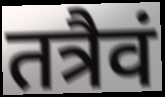
तत्रैवं